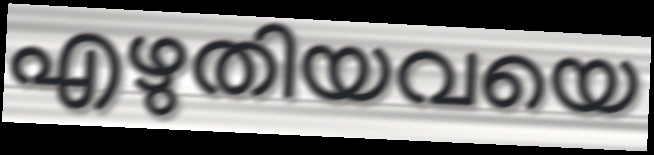
എഴുതിയവയെ